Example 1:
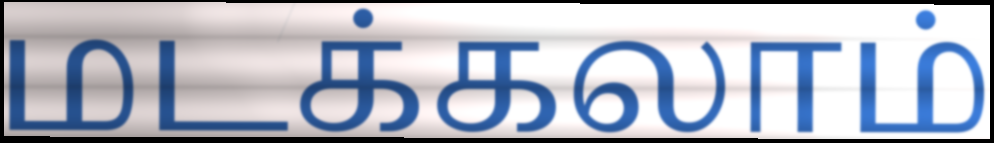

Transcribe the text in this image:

மடக்கலாம்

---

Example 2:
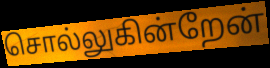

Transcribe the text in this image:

சொல்லுகின்றேன்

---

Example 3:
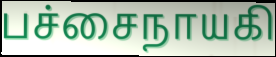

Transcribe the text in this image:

பச்சைநாயகி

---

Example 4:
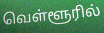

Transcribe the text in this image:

வெள்ளூரில்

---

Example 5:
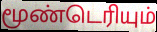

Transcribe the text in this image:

மூண்டெரியும்